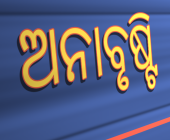
ଅନାବୃଷ୍ଟି